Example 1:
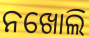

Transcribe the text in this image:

ନଖୋଲି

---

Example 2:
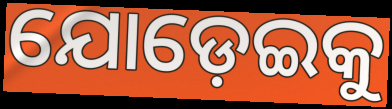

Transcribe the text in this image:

ଯୋଡ଼େଇକୁ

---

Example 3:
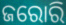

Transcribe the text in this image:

ଜରୋରି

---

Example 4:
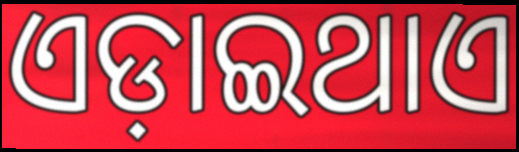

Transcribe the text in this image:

ଏଡ଼ାଇଥାଏ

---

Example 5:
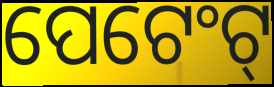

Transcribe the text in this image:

ପେଟେଂଟ୍